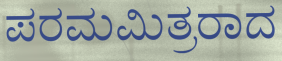
ಪರಮಮಿತ್ರರಾದ